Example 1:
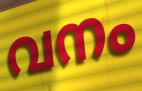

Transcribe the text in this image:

വനം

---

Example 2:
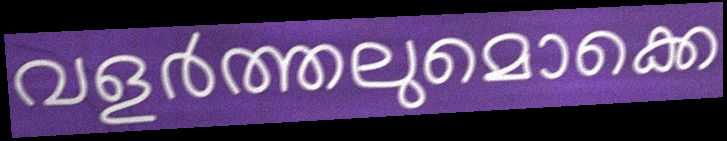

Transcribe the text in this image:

വളർത്തലുമൊക്കെ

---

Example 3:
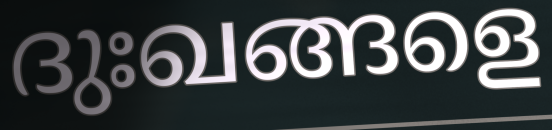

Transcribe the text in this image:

ദുഃഖങ്ങളെ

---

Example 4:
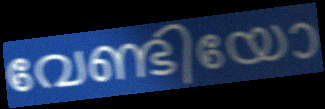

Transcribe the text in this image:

വേണ്ടിയോ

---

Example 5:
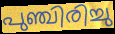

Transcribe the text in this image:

പുഞ്ചിരിച്ചു